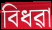
বিধৱা